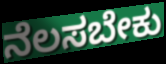
ನೆಲಸಬೇಕು